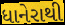
ધાનેરાથી